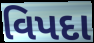
વિપદા